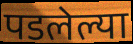
पडलेल्या